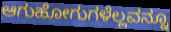
ಆಗುಹೋಗುಗಳೆಲ್ಲವನ್ನೂ